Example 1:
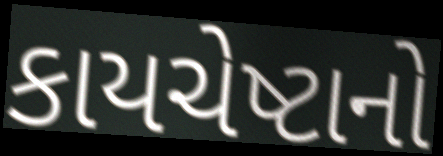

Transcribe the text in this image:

કાયચેષ્ટાનો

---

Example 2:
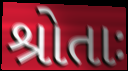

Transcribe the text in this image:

શ્રોતાઃ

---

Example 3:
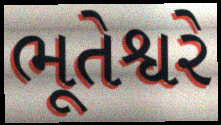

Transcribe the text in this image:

ભૂતેશ્વરે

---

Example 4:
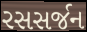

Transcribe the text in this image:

રસસર્જન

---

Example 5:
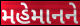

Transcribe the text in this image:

મહેમાનને